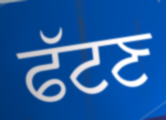
ਫੱਟਣ